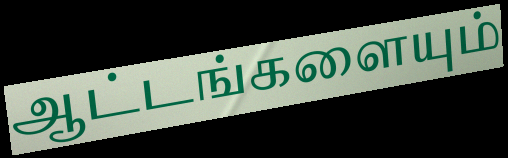
ஆட்டங்களையும்